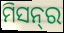
ମିସନ୍‍ର